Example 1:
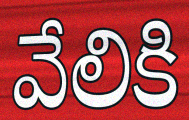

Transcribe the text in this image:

వేలికి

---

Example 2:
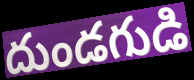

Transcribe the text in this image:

దుండగుడి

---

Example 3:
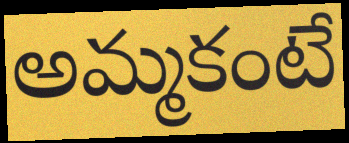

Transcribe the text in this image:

అమ్మకంటే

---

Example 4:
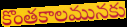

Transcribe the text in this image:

కొంతకాలమునకు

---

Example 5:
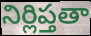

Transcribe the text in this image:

నిర్లిప్తతా